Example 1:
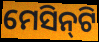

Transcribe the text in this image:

ମେସିନ୍‌ଟି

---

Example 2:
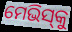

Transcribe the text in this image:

ମେଭିସ୍‌କୁ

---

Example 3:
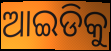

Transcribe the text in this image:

ଆଇଡିକୁ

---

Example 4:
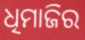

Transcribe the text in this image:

ଧିମାଜିର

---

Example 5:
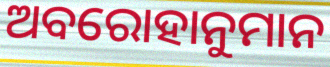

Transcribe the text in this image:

ଅବରୋହାନୁମାନ